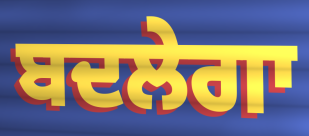
ਬਦਲੇਗਾ